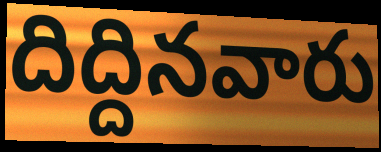
దిద్దినవారు